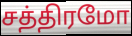
சத்திரமோ